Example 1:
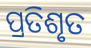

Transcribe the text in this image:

ପ୍ରତିଶୃତ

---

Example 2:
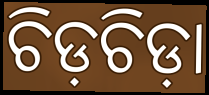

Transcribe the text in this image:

ଚିଡ଼ଚିଡ଼ା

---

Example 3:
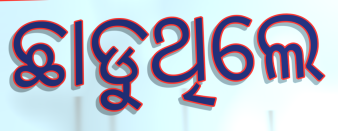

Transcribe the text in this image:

ଛାଡୁଥିଲେ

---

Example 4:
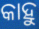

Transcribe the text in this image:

କାହୁ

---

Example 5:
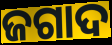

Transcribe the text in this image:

ଜଗାଦ